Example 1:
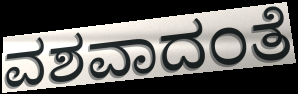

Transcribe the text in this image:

ವಶವಾದಂತೆ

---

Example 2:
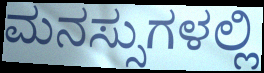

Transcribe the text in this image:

ಮನಸ್ಸುಗಳಲ್ಲಿ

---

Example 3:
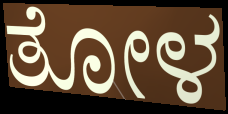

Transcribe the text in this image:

ತೋಳ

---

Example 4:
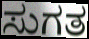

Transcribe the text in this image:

ಸುಗತ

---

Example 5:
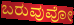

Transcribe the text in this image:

ಬರುವುವೋ